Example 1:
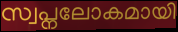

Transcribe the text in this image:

സ്വപ്നലോകമായി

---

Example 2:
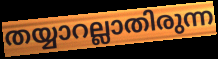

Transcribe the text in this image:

തയ്യാറല്ലാതിരുന്ന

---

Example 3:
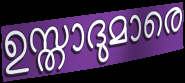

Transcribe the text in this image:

ഉസ്താദുമാരെ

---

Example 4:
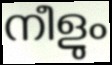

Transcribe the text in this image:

നീളും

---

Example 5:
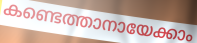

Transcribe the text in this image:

കണ്ടെത്താനായേക്കാം